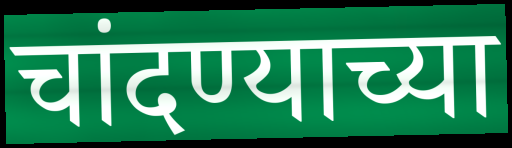
चांदण्याच्या